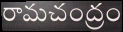
రామచంద్రం